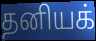
தனியக்